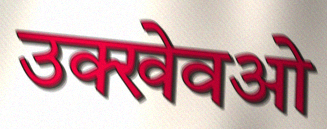
उक्खेवओ